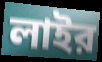
লাইর